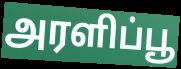
அரளிப்பூ